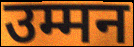
उम्मन